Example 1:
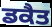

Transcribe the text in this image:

ਡਕੈਤ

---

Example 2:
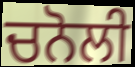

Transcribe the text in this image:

ਚਨੋਲੀ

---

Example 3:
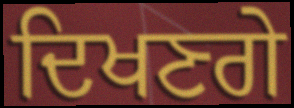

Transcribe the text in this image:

ਦਿਖਣਗੇ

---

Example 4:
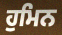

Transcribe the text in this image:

ਹੁਮਿਨ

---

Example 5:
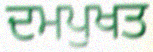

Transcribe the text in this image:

ਦਮਪੁਖਤ